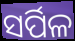
ସର୍ପିଳ